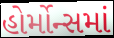
હોર્મોન્સમાં